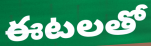
ఈటలతో